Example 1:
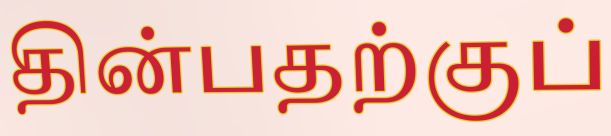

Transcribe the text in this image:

தின்பதற்குப்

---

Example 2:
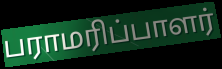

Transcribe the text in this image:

பராமரிப்பாளர்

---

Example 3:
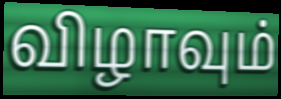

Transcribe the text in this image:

விழாவும்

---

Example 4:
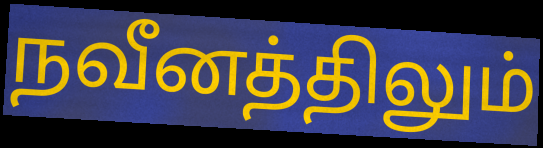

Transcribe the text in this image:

நவீனத்திலும்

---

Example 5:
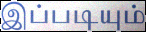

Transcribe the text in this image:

இப்படியும்